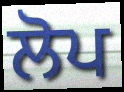
ਲੋਪ